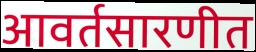
आवर्तसारणीत